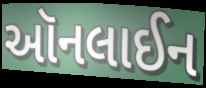
ઑનલાઈન